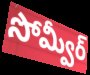
సోమ్వీర్